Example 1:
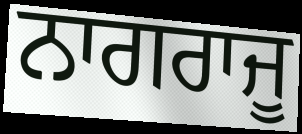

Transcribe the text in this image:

ਨਾਗਰਾਜੂ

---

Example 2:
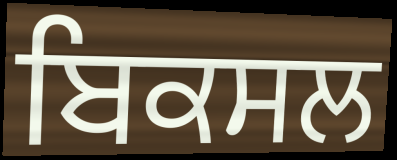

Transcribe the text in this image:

ਬਿਕਸਲ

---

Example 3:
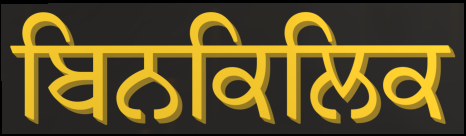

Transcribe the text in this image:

ਬਿਨਕਿਲਿਕ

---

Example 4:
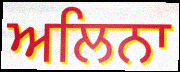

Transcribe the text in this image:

ਅਲਿਨਾ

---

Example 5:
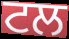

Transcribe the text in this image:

ਟਲ